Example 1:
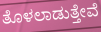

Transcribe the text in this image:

ತೊಳಲಾಡುತ್ತೇವೆ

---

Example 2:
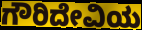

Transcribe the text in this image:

ಗೌರಿದೇವಿಯ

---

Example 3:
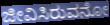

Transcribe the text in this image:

ಜೀವಿಸಿರುವನೋ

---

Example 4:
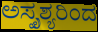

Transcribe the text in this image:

ಅಸ್ಪೃಶ್ಯರಿಂದ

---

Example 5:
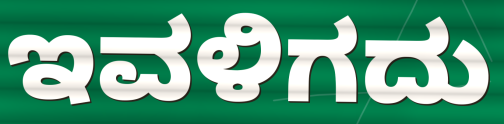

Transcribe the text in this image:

ಇವಳಿಗದು